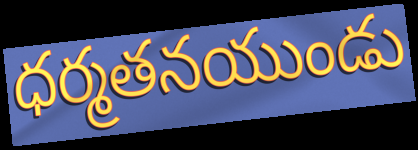
ధర్మతనయుండు